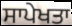
ਸਾਪੇਖਤਾ